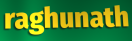
raghunath